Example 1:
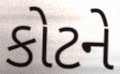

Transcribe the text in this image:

કોટને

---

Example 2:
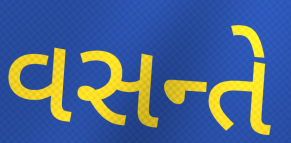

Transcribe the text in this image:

વસન્તે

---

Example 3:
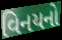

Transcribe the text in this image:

વિનયનો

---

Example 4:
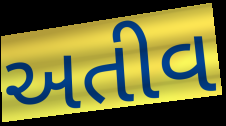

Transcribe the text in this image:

અતીવ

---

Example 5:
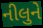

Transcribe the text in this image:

નીલુને